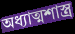
অধ্যাত্মশাস্ত্র